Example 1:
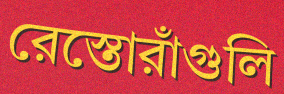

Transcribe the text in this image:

রেস্তোরাঁগুলি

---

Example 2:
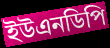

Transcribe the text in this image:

ইউএনডিপি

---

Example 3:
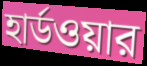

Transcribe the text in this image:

হার্ডওয়ার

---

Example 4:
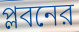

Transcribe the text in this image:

প্লবনের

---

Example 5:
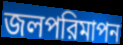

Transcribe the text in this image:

জলপরিমাপন